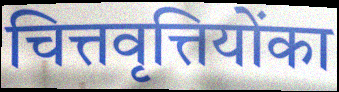
चित्तवृत्तियोंका